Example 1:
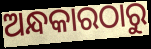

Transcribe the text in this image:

ଅନ୍ଧକାରଠାରୁ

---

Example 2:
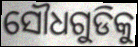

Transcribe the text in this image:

ସୌଧଗୁଡିକୁ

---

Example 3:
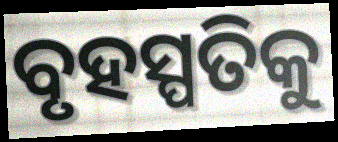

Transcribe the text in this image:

ବୃହସ୍ପତିକୁ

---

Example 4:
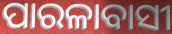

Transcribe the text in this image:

ପାରଳାବାସୀ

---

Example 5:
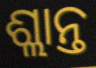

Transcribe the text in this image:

ଶ୍ଲାନ୍ତ